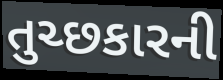
તુચ્છકારની